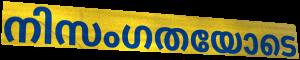
നിസംഗതയോടെ